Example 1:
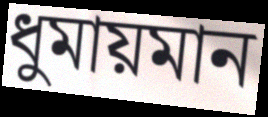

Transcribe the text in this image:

ধুমায়মান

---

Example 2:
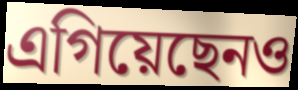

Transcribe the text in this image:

এগিয়েছেনও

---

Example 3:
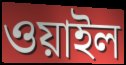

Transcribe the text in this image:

ওয়াইল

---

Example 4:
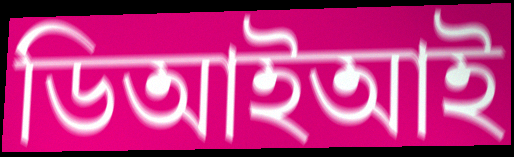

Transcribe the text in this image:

ডিআইআই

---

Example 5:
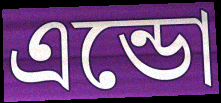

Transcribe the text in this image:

এন্ডো